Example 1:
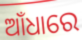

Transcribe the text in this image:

ଆଁଧାରେ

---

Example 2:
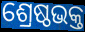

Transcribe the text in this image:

ଶ୍ରେଷ୍ଠଭକ୍ତ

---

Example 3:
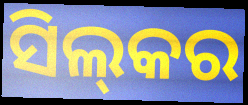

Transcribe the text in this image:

ସିଲ୍‍କର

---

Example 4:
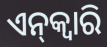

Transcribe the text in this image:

ଏନ୍‌କ୍ୱାରି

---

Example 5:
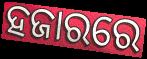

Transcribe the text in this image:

ହଜାରରେ